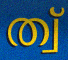
ത്വ്